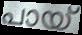
പായ്